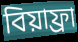
বিয়াফ্রা